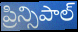
ప్రిన్సిపాల్